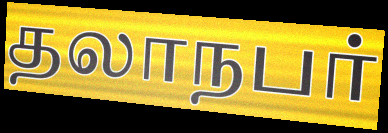
தலாநபர்